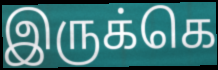
இருக்கெ